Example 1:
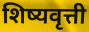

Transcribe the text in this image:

शिष्यवृत्ती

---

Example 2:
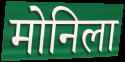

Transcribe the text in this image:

मोनिला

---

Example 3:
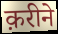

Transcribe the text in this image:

क़रीने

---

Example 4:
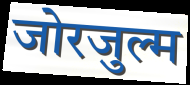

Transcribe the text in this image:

जोरजुल्म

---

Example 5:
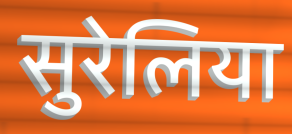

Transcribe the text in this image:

सुरेलिया